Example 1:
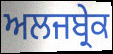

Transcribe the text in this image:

ਅਲਜਬ੍ਰੇਕ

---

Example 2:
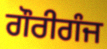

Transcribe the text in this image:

ਗੌਰੀਗੰਜ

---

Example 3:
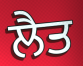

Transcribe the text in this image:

ਲੈਤ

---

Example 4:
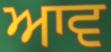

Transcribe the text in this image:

ਆਵ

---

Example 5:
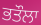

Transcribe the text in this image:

ਭਤੌਲਾ